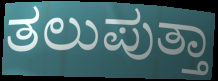
ತಲುಪುತ್ತಾ